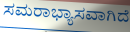
ಸಮರಾಭ್ಯಾಸವಾಗಿದೆ